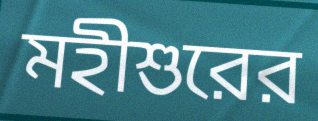
মহীশুরের